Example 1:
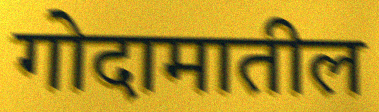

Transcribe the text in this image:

गोदामातील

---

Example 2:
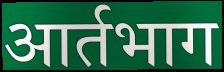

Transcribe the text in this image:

आर्तभाग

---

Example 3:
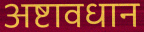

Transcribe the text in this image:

अष्टावधान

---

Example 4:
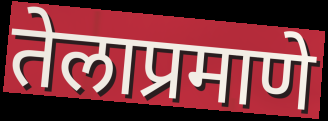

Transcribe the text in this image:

तेलाप्रमाणे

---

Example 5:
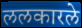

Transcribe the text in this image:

ललकारले